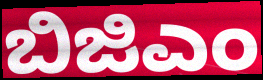
ಬಿಜಿಎಂ